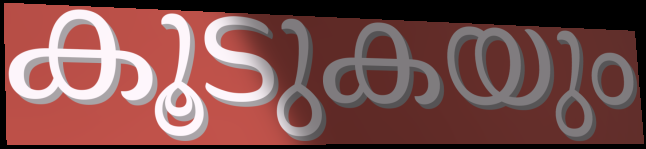
കൂടുകയും